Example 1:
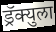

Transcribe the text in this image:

ड्रॅक्युला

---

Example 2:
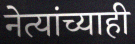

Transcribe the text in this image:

नेत्यांच्याही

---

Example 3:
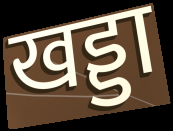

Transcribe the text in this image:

खड्डा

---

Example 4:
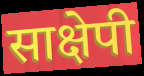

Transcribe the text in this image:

साक्षेपी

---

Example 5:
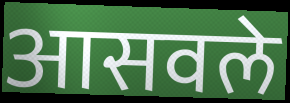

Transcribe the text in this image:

आसवले